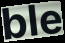
ble